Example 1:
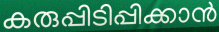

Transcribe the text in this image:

കരുപ്പിടിപ്പിക്കാൻ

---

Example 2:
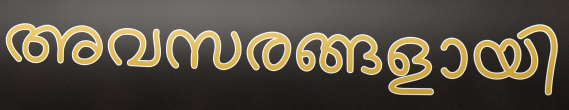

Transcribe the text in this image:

അവസരങ്ങളായി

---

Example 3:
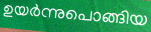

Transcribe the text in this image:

ഉയർന്നുപൊങ്ങിയ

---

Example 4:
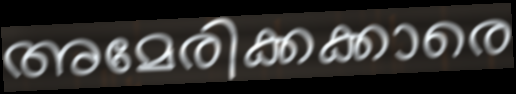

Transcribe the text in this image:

അമേരിക്കക്കാരെ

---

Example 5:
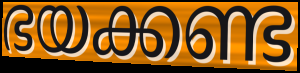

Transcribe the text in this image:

ഭയക്കണ്ട